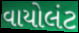
વાયોલંટ